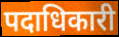
पदाधिकारी